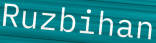
Ruzbihan